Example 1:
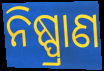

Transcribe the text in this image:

ନିଷ୍ପ୍ରାଣ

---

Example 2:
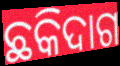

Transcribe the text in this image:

ଛକିଦାଗ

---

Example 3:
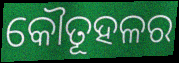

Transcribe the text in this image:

କୌତୂହଳର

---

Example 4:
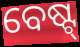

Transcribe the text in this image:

ବେଷ୍ଟ୍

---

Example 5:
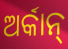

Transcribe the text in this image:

ଅର୍କାନ୍